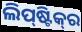
ଲିପ୍‌ଷ୍ଟିକ୍‌ର